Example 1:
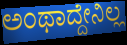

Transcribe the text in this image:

ಅಂಥಾದ್ದೇನಿಲ್ಲ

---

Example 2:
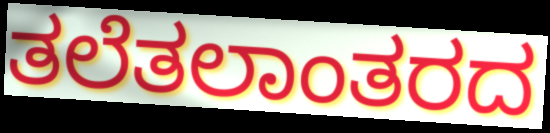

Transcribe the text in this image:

ತಲೆತಲಾಂತರದ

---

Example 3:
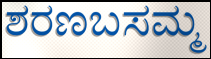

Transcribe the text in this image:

ಶರಣಬಸಮ್ಮ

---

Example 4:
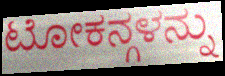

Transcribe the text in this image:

ಟೋಕನ್ಗಳನ್ನು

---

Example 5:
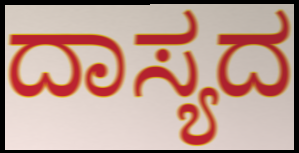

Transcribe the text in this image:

ದಾಸ್ಯದ